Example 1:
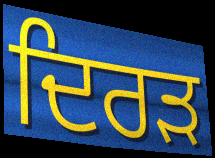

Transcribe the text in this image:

ਦਿਰੜ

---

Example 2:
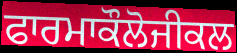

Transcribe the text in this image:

ਫਾਰਮਾਕੌਲੋਜੀਕਲ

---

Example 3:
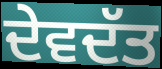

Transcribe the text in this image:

ਦੇਵਦੱਤ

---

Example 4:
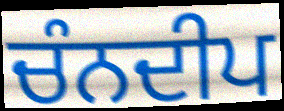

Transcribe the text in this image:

ਚੰਨਦੀਪ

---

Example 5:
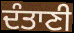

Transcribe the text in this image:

ਦੰਤਾਣੀ